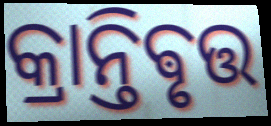
କ୍ରାନ୍ତିଵୃତ୍ତ